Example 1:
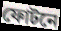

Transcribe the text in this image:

ফোটনে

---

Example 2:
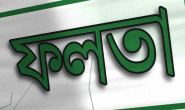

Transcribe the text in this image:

ফলতা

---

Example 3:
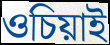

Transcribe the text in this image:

ওচিয়াই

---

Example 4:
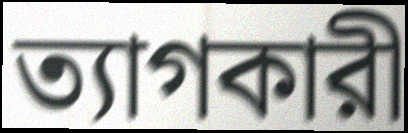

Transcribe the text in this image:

ত্যাগকারী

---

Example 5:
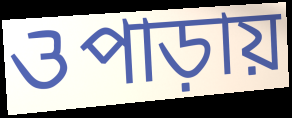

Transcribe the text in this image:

ওপাড়ায়